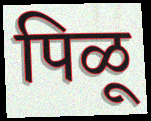
पिळू